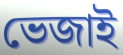
ভেজাই